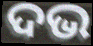
ଦଭ